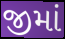
જીમાં